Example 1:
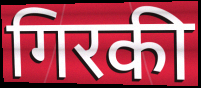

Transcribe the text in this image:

गिरकी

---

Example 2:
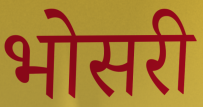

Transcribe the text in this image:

भोसरी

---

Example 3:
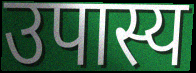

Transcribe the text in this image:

उपास्य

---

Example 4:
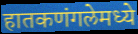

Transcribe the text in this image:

हातकणंगलेमध्ये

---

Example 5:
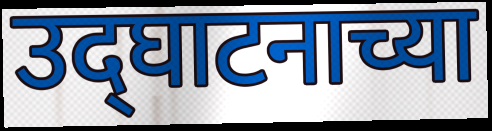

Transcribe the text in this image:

उद्घाटनाच्या